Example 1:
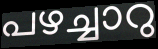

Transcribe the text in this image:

പഴച്ചാറു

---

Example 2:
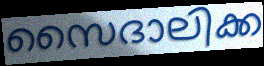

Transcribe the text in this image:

സൈദാലിക്ക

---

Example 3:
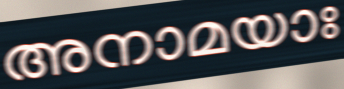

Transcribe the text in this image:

അനാമയാഃ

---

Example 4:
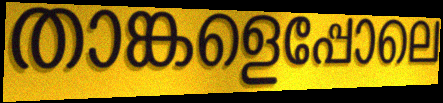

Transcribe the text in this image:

താങ്കളെപ്പോലെ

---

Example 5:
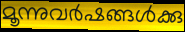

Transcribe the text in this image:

മൂന്നുവർഷങ്ങൾക്കു